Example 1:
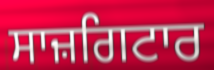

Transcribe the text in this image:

ਸਾਜ਼ਗਿਟਾਰ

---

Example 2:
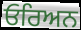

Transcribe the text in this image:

ਓਰਿਅਨ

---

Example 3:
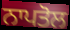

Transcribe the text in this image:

ਨਾਪਤੋਲ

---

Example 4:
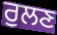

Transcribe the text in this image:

ਰੁਲਣ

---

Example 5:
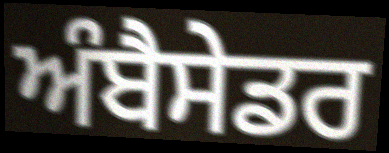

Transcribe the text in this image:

ਅੰਬੈਸੇਡਰ